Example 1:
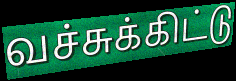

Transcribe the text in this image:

வச்சுக்கிட்டு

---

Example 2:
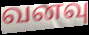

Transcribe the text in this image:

வனவு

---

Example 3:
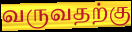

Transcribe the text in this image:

வருவதற்கு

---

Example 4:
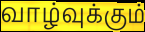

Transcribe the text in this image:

வாழ்வுக்கும்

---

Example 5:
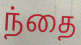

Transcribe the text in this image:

ந்தை